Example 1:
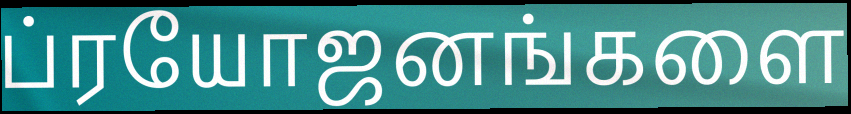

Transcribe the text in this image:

ப்ரயோஜனங்களை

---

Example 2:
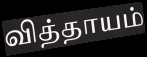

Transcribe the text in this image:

வித்தாயம்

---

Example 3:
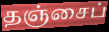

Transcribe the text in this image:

தஞ்சைப்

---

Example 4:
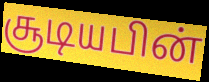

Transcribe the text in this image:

சூடியபின்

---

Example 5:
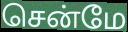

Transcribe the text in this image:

சென்மே